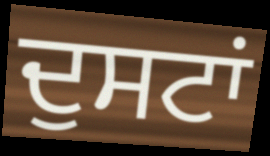
ਦੁਸਟਾਂ